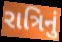
રાત્રિનું